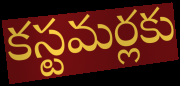
కస్టమర్లకు